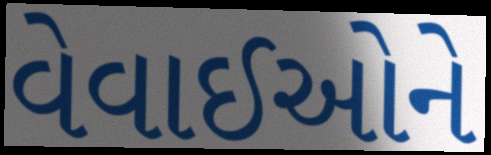
વેવાઈઓને